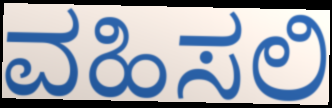
ವಹಿಸಲಿ